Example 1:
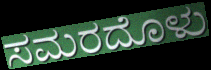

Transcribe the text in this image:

ಸಮರದೊಳು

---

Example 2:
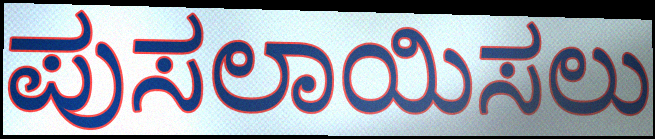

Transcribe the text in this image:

ಪುಸಲಾಯಿಸಲು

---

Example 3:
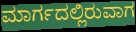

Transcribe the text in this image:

ಮಾರ್ಗದಲ್ಲಿರುವಾಗ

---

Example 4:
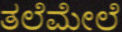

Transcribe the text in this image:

ತಲೆಮೇಲೆ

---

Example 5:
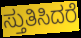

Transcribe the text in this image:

ಸ್ತುತಿಸಿದರೆ